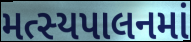
મત્સ્યપાલનમાં